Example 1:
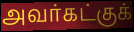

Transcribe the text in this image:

அவர்கட்குக்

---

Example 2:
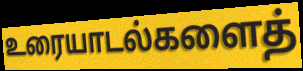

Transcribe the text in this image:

உரையாடல்களைத்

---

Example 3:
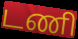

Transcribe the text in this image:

டணி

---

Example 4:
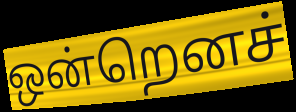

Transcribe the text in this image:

ஒன்றெனச்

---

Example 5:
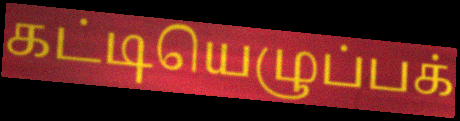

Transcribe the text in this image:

கட்டியெழுப்பக்